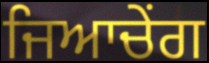
ਜਿਆਚੇਂਗ